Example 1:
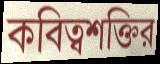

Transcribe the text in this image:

কবিত্বশক্তির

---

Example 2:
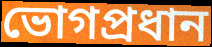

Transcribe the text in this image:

ভোগপ্রধান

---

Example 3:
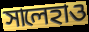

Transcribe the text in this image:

সালেহাও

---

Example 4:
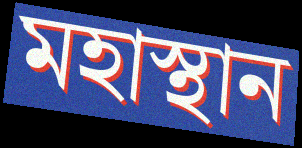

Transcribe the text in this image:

মহাস্থান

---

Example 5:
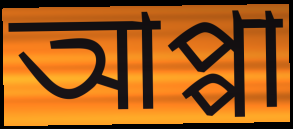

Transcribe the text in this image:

আপ্পা